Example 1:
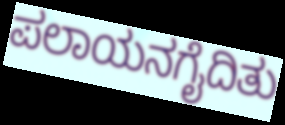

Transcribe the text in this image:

ಪಲಾಯನಗೈದಿತು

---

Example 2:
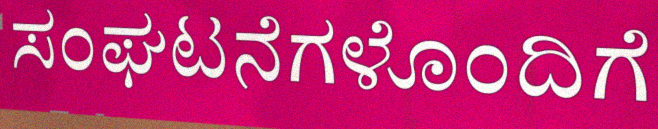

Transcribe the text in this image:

ಸಂಘಟನೆಗಳೊಂದಿಗೆ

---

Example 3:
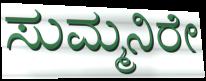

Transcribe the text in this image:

ಸುಮ್ಮನಿರೇ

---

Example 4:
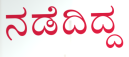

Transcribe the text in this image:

ನಡೆದಿದ್ದ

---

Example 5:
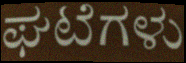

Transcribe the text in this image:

ಘಟೆಗಳು